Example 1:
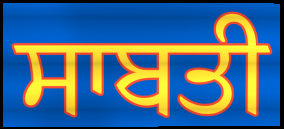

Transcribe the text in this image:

ਸਾਬਤੀ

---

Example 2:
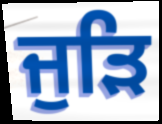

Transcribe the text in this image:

ਜੁੜਿ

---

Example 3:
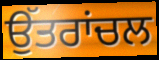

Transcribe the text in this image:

ਉੱਤਰਾਂਚਲ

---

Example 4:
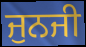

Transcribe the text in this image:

ਜੁਨਜੀ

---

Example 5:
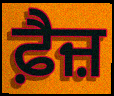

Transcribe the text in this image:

ਫ਼ੈਜ਼